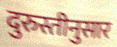
दुरुस्तीनुसार